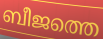
ബീജത്തെ